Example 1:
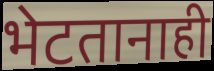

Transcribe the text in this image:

भेटतानाही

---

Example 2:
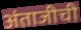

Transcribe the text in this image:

अंताजीची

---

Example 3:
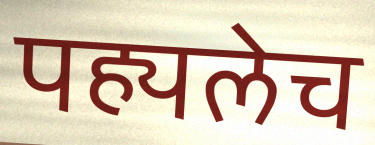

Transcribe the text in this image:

पह्यलेच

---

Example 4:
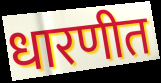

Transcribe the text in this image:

धारणीत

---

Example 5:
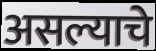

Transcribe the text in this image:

असल्‍याचे